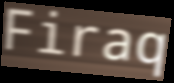
Firaq